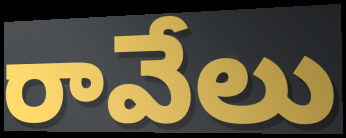
రావేలు